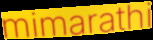
mimarathi